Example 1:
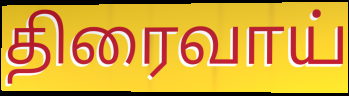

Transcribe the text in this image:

திரைவாய்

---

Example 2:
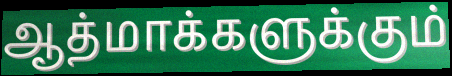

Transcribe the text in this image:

ஆத்மாக்களுக்கும்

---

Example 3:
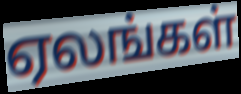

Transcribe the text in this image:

ஏலங்கள்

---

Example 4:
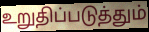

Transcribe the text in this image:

உறுதிப்படுத்தும்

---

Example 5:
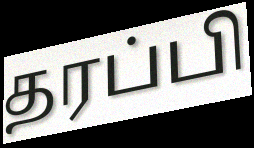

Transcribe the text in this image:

தரப்பி